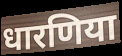
धारणिया